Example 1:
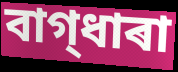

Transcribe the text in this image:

বাগ্‌ধাৰা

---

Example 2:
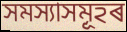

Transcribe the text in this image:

সমস্যাসমূহৰ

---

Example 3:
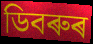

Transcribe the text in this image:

ডিবৰুৰ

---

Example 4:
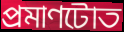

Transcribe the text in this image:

প্ৰমাণটোত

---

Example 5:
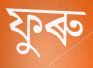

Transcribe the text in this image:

ফুৰু